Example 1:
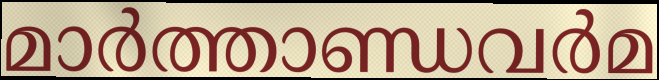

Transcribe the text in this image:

മാർത്താണ്ഡവർമ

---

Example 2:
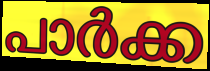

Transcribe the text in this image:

പാർക്ക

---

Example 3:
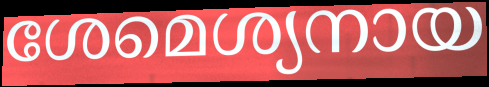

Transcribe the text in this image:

ശേമെശ്യനായ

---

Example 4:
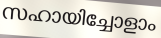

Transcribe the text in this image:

സഹായിച്ചോളാം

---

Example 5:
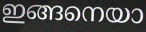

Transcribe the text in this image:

ഇങ്ങനെയാ